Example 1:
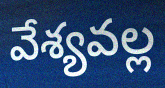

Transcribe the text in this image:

వేశ్యవల్ల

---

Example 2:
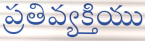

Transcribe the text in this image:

ప్రతివ్యక్తియు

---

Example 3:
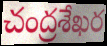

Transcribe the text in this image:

చంద్రశేఖర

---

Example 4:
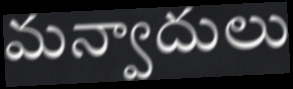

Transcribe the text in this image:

మన్వాదులు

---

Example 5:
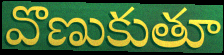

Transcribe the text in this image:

వొణుకుతూ